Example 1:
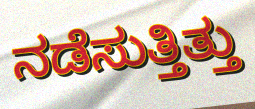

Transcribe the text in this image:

ನಡೆಸುತ್ತಿತ್ತು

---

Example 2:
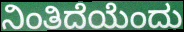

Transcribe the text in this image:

ನಿಂತಿದೆಯೆಂದು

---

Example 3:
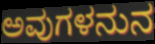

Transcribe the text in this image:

ಅವುಗಳನುನ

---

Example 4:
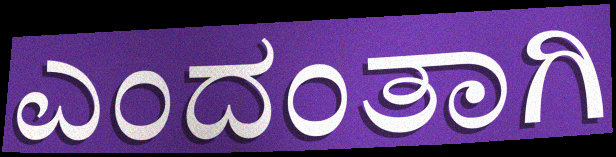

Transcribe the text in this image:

ಎಂದಂತಾಗಿ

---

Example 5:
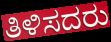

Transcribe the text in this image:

ತಿಳಿಸದರು